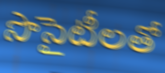
సొసైటీలతో